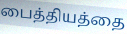
பைத்தியத்தை